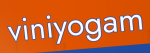
viniyogam